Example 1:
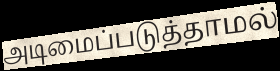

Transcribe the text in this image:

அடிமைப்படுத்தாமல்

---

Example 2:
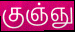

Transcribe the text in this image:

குஞ்ஞு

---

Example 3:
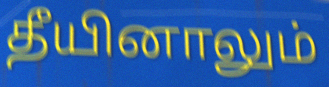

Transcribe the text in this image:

தீயினாலும்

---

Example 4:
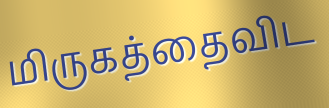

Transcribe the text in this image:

மிருகத்தைவிட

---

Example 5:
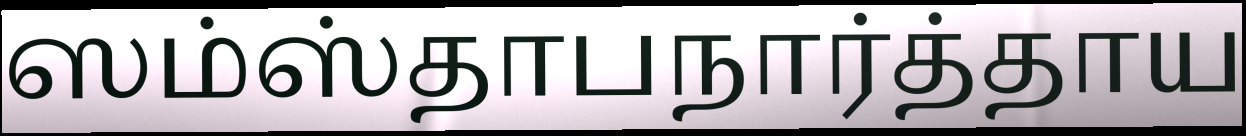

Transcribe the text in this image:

ஸம்ஸ்தாபநார்த்தாய